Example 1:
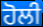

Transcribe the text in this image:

ਹੋਲੀ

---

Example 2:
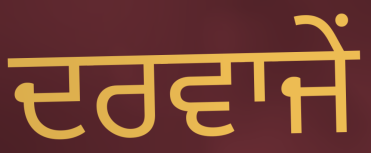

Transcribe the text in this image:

ਦਰਵਾਜੇਂ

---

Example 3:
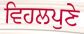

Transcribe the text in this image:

ਵਿਹਲਪੁਣੇ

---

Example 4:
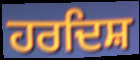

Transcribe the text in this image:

ਹਰਦਿਸ਼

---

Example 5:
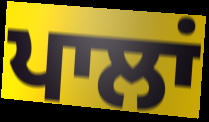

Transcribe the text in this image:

ਪਾਲਾਂ